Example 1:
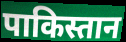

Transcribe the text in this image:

पाकिस्तान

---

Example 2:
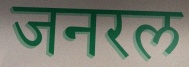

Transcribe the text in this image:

जनरल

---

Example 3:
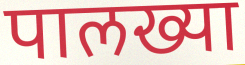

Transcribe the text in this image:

पालख्या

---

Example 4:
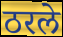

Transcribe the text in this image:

ठरले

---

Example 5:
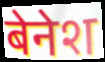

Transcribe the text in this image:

बेनेश